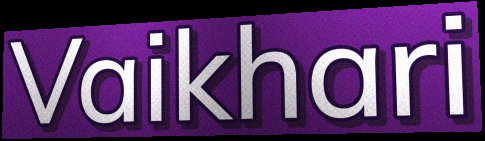
Vaikhari